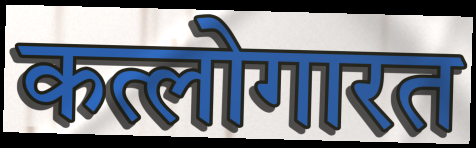
कत्लोगारत